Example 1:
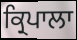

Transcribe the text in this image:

ਕ੍ਰਿਪਾਲਾ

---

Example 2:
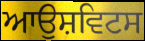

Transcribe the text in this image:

ਆਉਸ਼ਵਿਟਸ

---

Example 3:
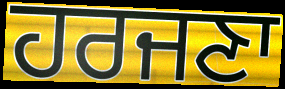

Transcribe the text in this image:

ਹਰਜਣਾ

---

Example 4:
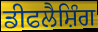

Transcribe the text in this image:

ਡੀਫਲੈਸ਼ਿੰਗ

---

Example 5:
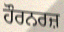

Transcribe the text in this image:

ਹੌਰਨਰਜ਼